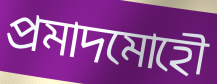
প্রমাদমোহৌ